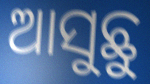
ଆସୁଛୁ